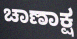
ಚಾಣಾಕ್ಷ